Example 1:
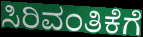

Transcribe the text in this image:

ಸಿರಿವಂತಿಕೆಗೆ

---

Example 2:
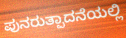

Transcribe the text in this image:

ಪುನರುತ್ಪಾದನೆಯಲ್ಲಿ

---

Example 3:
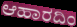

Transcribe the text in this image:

ಆಹಾರದಿಂ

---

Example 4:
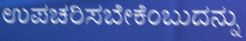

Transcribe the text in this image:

ಉಪಚರಿಸಬೇಕೆಂಬುದನ್ನು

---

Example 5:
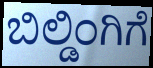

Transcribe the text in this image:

ಬಿಲ್ಡಿಂಗಿಗೆ